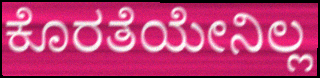
ಕೊರತೆಯೇನಿಲ್ಲ